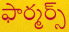
ఫార్మర్స్